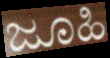
ಜೂಹಿ